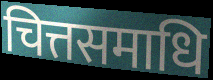
चित्तसमाधि